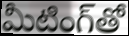
మీటింగ్‌తో